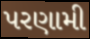
પરણામી